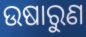
ଉଷାରୁଣ